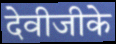
देवीजीके